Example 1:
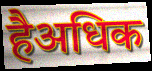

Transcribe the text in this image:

हैअधिक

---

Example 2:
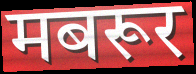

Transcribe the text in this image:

मबरूर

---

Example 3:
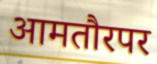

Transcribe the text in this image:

आमतौरपर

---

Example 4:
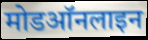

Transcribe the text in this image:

मोडऑनलाइन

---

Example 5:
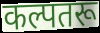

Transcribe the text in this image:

कल्पतरू